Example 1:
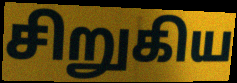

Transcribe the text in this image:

சிறுகிய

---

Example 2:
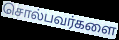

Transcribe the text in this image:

சொல்பவர்களை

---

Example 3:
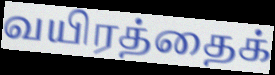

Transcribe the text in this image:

வயிரத்தைக்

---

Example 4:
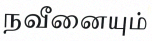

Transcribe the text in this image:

நவீனையும்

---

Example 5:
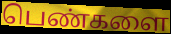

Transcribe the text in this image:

பெண்களை